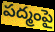
పద్మంపై